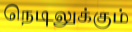
நெடிலுக்கும்